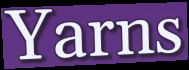
Yarns